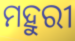
ମହୁରୀ